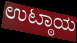
ಉಟ್ಠಾಯ